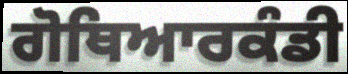
ਗੋਥਿਆਰਕੰਡੀ